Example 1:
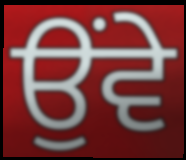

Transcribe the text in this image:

ਉੰਵੇ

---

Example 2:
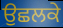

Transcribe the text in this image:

ਉਛਲਕੇ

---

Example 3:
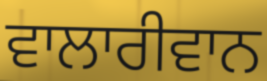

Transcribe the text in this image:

ਵਾਲਾਰੀਵਾਨ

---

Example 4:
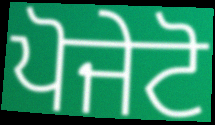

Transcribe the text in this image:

ਪੋਜੇਟੋ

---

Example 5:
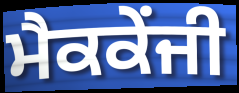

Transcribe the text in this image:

ਮੈਕਕੇਂਜੀ